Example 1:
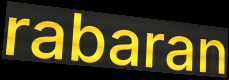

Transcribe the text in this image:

rabaran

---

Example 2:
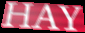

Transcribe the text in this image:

HAY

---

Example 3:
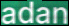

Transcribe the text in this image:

adan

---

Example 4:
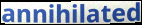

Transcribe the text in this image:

annihilated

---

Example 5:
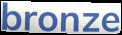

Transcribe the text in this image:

bronze